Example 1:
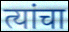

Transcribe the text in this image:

त्‍यांचा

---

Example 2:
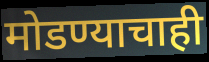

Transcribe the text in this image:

मोडण्याचाही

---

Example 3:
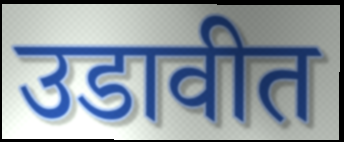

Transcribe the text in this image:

उडावीत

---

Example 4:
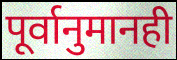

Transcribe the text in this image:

पूर्वानुमानही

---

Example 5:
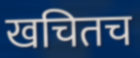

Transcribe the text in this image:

खचितच